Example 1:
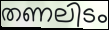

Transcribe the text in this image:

തണലിടം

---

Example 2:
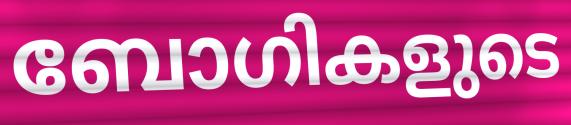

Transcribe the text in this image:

ബോഗികളുടെ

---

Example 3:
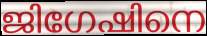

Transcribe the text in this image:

ജിഗേഷിനെ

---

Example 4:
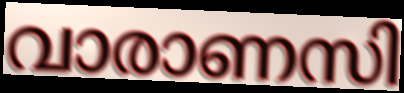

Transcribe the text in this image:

വാരാണസി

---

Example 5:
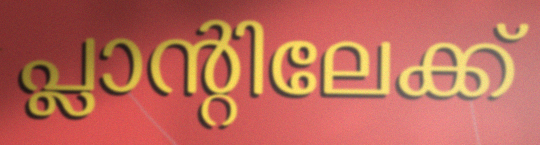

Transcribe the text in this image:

പ്ലാന്റിലേക്ക്